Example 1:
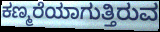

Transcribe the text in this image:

ಕಣ್ಮರೆಯಾಗುತ್ತಿರುವ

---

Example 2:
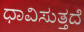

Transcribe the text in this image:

ಧಾವಿಸುತ್ತದೆ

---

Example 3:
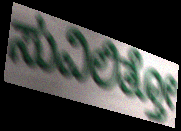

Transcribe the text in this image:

ಸುವಿಲಿತ್ತೋ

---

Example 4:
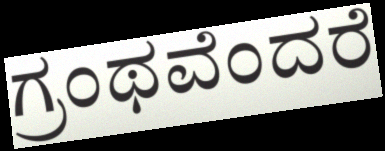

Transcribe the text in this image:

ಗ್ರಂಥವೆಂದರೆ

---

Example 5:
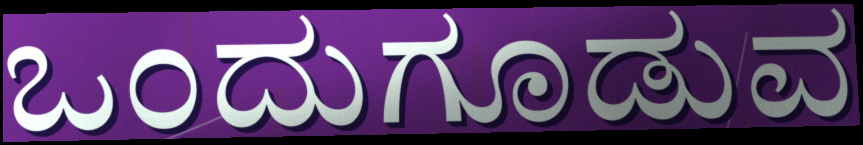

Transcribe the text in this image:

ಒಂದುಗೂಡುವ